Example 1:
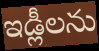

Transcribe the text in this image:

ఇడ్లీలను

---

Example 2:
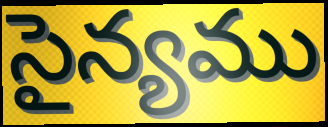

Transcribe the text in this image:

సైన్యము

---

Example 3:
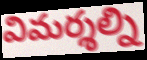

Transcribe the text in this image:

విమర్శల్ని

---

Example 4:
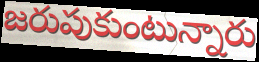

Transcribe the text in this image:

జరుపుకుంటున్నారు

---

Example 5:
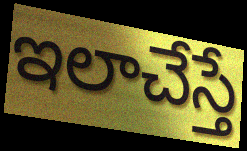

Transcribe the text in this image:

ఇలాచేస్తే